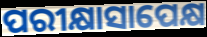
ପରୀକ୍ଷାସାପେକ୍ଷ